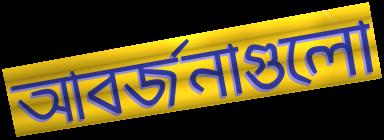
আবর্জনাগুলো